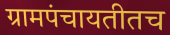
ग्रामपंचायतीतच